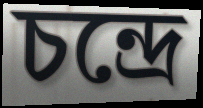
চন্দ্রে